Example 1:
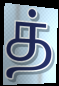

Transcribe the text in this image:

த்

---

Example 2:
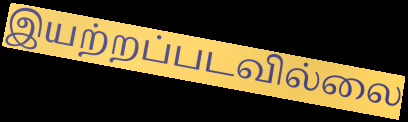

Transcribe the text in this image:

இயற்றப்படவில்லை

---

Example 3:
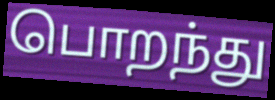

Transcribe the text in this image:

பொறந்து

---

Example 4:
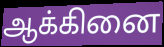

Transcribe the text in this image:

ஆக்கினை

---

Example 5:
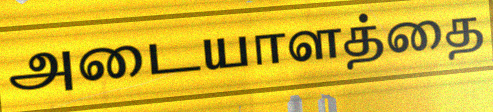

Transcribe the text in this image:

அடையாளத்தை